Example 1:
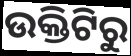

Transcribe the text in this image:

ଉକ୍ତିଟିରୁ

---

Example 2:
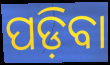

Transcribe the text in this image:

ପଡ଼ିବା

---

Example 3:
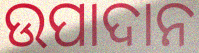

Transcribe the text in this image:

ଉପାଦାନ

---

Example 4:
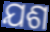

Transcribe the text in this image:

ଯଶ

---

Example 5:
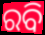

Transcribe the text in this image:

ରବି